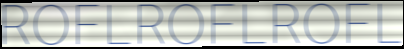
ROFLROFLROFL